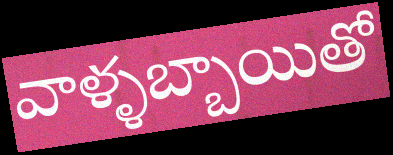
వాళ్ళబ్బాయితో